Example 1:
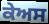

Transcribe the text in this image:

ਕੇਅਸ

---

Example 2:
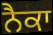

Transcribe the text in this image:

ਨੈਕਾ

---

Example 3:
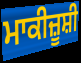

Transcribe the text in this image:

ਮਾਕੀਜ਼ੂਸ਼ੀ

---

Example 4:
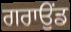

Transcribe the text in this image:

ਗਰਾਉਂਡ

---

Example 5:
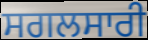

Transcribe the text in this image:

ਸਗਲਸਾਰੀ